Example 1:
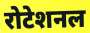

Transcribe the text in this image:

रोटेशनल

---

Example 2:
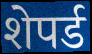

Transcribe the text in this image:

शेपर्ड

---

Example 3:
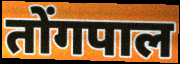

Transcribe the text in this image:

तोंगपाल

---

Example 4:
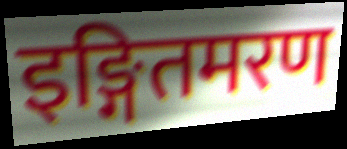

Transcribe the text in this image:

इङ्गितमरण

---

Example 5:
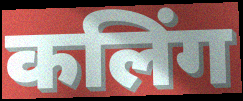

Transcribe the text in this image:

कलिंग